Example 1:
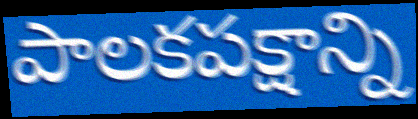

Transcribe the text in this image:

పాలకపక్షాన్ని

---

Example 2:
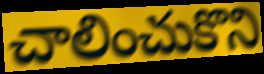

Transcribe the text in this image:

చాలించుకొని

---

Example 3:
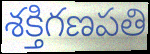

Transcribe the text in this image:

శక్తిగణపతి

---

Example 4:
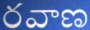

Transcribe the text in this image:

రవాణ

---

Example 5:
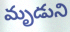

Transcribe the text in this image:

మృడుని